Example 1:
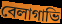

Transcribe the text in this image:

বেলাগাভি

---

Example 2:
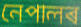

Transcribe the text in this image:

নেপালৰ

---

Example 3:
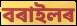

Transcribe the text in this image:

বৰাইলৰ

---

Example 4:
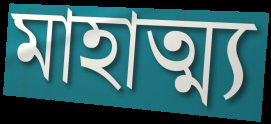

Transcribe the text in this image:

মাহাত্ম্য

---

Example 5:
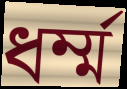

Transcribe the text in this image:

ধৰ্ম্ম